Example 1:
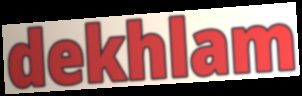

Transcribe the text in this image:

dekhlam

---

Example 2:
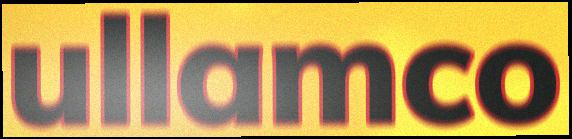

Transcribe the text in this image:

ullamco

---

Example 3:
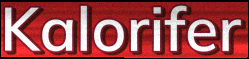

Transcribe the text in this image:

Kalorifer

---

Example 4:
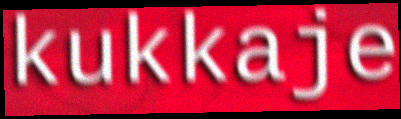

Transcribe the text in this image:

kukkaje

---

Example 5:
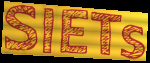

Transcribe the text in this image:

SIETs